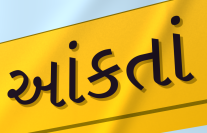
આંકતાં